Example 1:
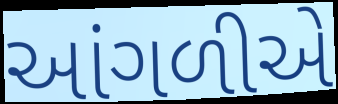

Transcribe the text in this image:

આંગળીએ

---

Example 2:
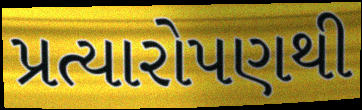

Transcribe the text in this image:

પ્રત્યારોપણથી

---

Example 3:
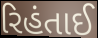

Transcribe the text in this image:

રિહંતાઈ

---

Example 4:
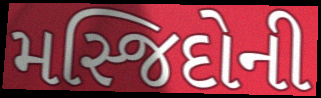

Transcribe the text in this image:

મસ્જિદોની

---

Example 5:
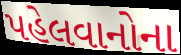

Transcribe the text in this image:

પહેલવાનોના